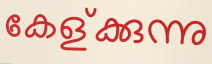
കേള്ക്കുന്നു